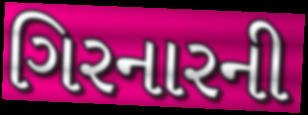
ગિરનારની